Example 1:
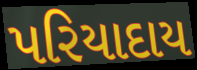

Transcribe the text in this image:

પરિયાદાય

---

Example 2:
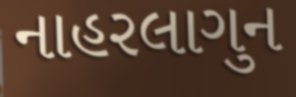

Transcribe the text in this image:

નાહરલાગુન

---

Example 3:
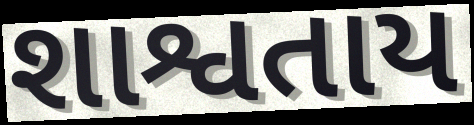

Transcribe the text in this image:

શાશ્વતાય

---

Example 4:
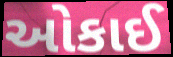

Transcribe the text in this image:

ઓકાઈ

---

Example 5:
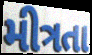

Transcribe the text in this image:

મીત્રતા